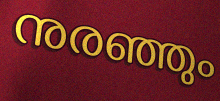
നുരഞ്ഞും